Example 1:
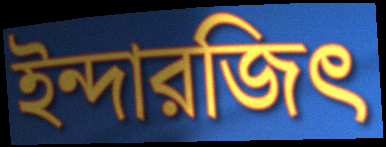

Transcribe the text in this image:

ইন্দারজিৎ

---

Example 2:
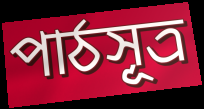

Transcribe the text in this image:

পাঠসূত্র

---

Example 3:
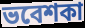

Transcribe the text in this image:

ভবেশকা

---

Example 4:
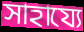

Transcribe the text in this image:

সাহায্যে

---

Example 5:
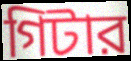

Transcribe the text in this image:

গিটার